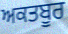
ਅਕਤਬੂਰ